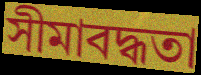
সীমাবদ্ধতা